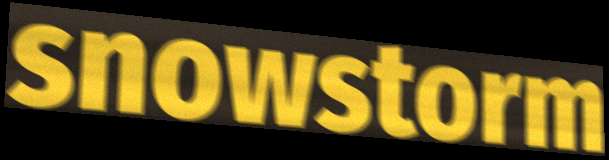
snowstorm